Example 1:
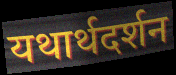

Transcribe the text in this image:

यथार्थदर्शन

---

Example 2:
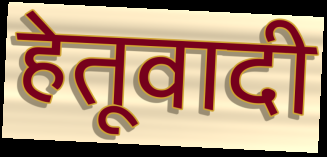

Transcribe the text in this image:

हेतूवादी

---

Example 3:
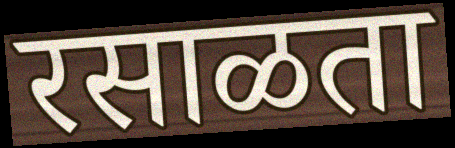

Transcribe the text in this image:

रसाळता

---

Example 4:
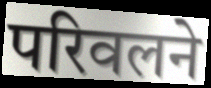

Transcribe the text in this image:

परिवलने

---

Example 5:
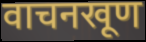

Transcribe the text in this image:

वाचनखूण